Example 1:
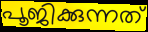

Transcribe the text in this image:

പൂജിക്കുന്നത്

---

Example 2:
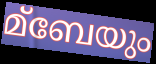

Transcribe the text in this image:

മ്ബേയും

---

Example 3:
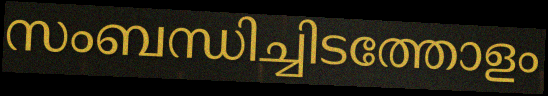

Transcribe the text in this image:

സംബന്ധിച്ചിടത്തോളം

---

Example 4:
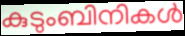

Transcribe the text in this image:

കുടുംബിനികൾ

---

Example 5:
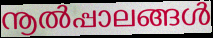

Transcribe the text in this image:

നൂൽപ്പാലങ്ങൾ